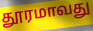
தூரமாவது